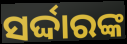
ସର୍ଦ୍ଦାରଙ୍କ